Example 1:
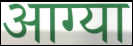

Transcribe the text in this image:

आग्या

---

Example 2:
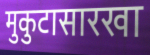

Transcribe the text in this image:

मुकुटासारखा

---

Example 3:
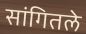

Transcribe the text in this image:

सांगितले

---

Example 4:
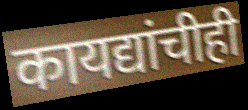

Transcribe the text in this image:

कायद्यांचीही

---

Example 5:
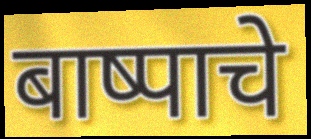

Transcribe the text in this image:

बाष्पाचे